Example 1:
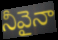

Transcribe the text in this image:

నీవైనా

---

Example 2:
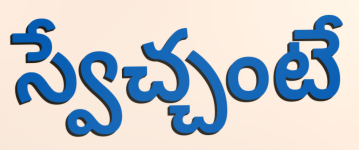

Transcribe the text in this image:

స్వేచ్చంటే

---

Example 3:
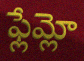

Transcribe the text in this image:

ఫ్లేమ్లో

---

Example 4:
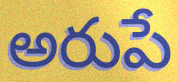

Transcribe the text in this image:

అరుపే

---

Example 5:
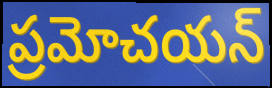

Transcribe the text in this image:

ప్రమోచయన్